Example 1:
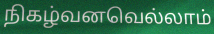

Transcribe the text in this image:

நிகழ்வனவெல்லாம்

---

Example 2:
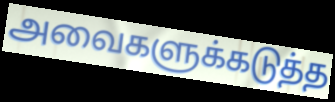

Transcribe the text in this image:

அவைகளுக்கடுத்த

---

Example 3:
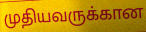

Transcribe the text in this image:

முதியவருக்கான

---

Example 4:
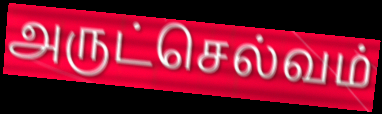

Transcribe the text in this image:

அருட்செல்வம்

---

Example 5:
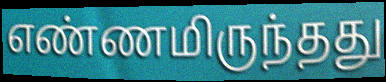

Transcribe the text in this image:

எண்ணமிருந்தது